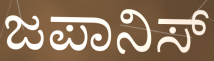
ಜಪಾನಿಸ್